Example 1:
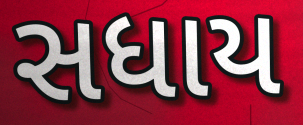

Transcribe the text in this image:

સધાય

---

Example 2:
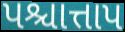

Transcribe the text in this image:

પશ્ચાત્તાપ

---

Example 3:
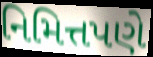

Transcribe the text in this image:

નિમિત્તપણે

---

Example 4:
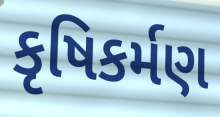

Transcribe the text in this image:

કૃષિકર્મણ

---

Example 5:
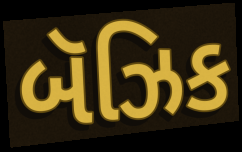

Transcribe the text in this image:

બૅઝિક